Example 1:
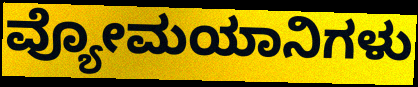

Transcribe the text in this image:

ವ್ಯೋಮಯಾನಿಗಳು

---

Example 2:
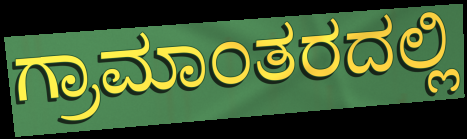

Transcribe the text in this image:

ಗ್ರಾಮಾಂತರದಲ್ಲಿ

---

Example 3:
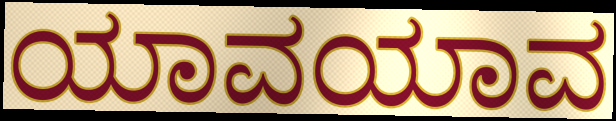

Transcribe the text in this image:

ಯಾವಯಾವ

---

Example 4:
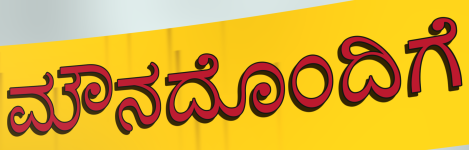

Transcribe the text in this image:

ಮೌನದೊಂದಿಗೆ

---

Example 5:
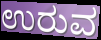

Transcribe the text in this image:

ಉರುವ